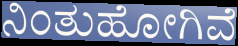
ನಿಂತುಹೋಗಿವೆ